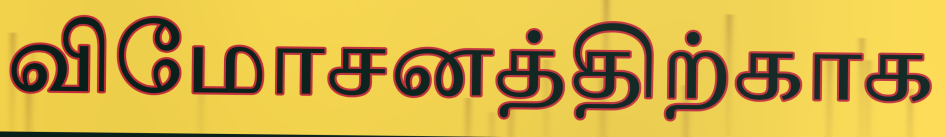
விமோசனத்திற்காக